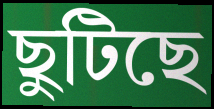
ছুটিছে